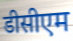
डीसीएम